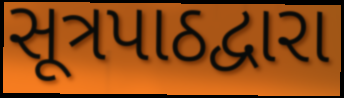
સૂત્રપાઠદ્વારા